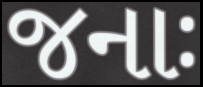
જનાઃ